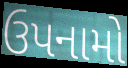
ઉપનામો